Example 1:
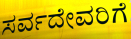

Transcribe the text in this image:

ಸರ್ವದೇವರಿಗೆ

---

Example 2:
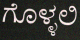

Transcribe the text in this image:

ಗೊಳ್ಳಲಿ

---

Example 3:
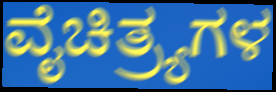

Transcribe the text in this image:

ವೈಚಿತ್ರ್ಯಗಳ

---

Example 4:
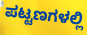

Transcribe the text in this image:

ಪಟ್ಟಣಗಳಲ್ಲಿ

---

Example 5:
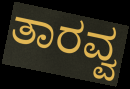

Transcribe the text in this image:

ತಾರವ್ವ